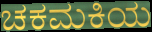
ಚಕಮಕಿಯ